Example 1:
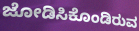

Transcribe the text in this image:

ಜೋಡಿಸಿಕೊಂಡಿರುವ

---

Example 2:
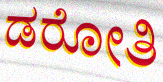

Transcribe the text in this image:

ಡರೋತಿ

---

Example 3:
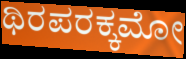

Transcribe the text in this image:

ಥಿರಪರಕ್ಕಮೋ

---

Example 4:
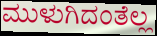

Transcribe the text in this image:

ಮುಳುಗಿದಂತೆಲ್ಲ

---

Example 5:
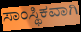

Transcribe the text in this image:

ಸಾಂಸ್ಥಿಕವಾಗಿ